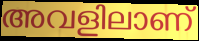
അവളിലാണ്